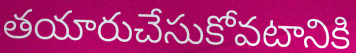
తయారుచేసుకోవటానికి